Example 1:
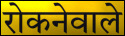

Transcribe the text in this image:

रोकनेवाले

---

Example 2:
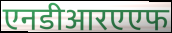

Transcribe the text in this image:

एनडीआरएएफ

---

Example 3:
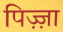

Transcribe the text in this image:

पिज़्ज़ा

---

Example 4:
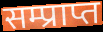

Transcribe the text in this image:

सम्प्राप्त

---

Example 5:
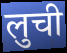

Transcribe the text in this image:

लुची